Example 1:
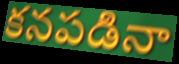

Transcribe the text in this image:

కనపడినా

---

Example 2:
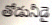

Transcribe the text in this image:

తోడునీడై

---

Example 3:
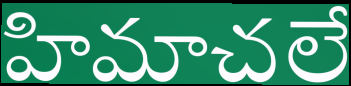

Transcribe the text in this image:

హిమాచలే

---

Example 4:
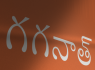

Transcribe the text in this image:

గగనాత్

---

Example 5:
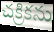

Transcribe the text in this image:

చక్రికను